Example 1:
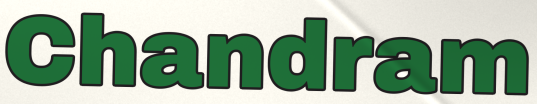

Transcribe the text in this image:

Chandram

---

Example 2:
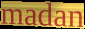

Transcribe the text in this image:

madan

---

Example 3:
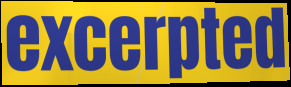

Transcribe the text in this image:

excerpted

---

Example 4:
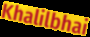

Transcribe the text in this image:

Khalilbhai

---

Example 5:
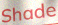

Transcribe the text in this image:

Shade